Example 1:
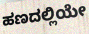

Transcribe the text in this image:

ಹಣದಲ್ಲಿಯೇ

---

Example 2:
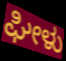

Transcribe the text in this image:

ಘೀಳು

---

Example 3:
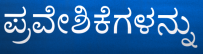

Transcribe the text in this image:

ಪ್ರವೇಶಿಕೆಗಳನ್ನು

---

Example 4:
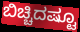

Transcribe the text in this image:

ಬಿಚ್ಚಿದಷ್ಟೂ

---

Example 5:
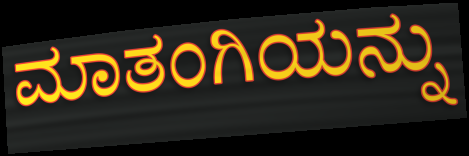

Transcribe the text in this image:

ಮಾತಂಗಿಯನ್ನು